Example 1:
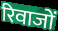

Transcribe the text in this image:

रिवाजों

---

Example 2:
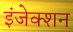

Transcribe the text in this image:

इंजेक्शन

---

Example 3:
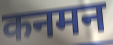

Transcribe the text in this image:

कनमन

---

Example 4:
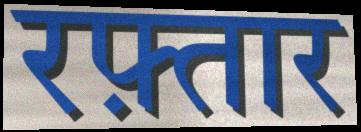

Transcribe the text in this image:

रफ़्तार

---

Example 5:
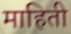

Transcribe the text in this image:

माहिती